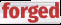
forged